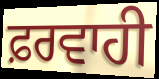
ਫ਼ਰਵਾਹੀ